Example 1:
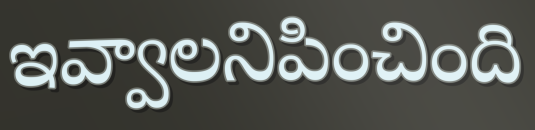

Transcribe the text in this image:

ఇవ్వాలనిపించింది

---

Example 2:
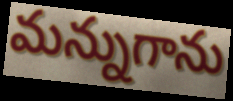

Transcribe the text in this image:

మన్నుగాను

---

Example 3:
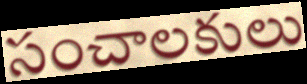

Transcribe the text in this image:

సంచాలకులు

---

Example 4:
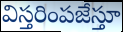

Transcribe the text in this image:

విస్తరింపజేస్తూ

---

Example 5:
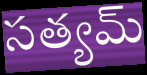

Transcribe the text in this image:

సత్యమ్